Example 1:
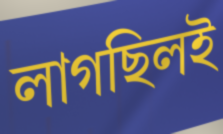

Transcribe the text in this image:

লাগছিলই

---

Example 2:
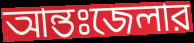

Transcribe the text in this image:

আন্তঃজেলার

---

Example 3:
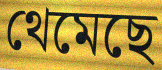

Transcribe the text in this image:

থেমেছে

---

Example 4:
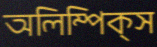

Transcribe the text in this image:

অলিম্পিক্‌স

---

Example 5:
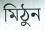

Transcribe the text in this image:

মিঠুন